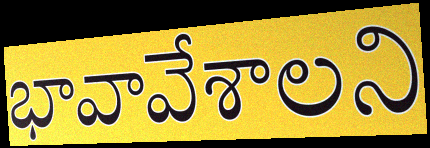
భావావేశాలని